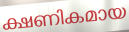
ക്ഷണികമായ